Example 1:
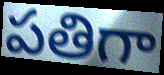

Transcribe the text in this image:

పతిగా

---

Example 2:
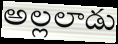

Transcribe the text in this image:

అల్లలాడు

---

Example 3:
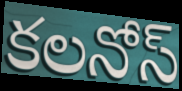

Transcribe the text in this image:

కలనోస్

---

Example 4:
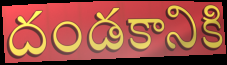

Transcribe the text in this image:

దండకానికి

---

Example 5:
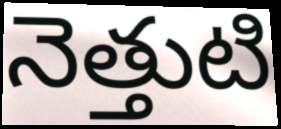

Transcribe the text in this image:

నెత్తుటి